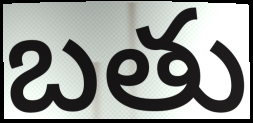
బతు